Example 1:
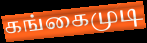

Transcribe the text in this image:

கங்கைமுடி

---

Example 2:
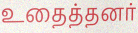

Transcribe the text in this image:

உதைத்தனர்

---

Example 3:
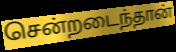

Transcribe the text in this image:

சென்றடைந்தான்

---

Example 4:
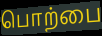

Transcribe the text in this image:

பொற்பை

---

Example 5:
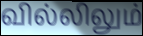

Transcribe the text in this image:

வில்லிலும்